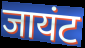
जायंट